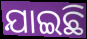
ଯାଇଛି